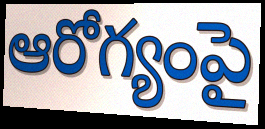
ఆరోగ్యంపై